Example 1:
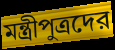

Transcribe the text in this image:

মন্ত্রীপুত্রদের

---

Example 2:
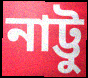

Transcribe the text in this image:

নাট্টু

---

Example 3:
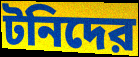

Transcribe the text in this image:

টনিদের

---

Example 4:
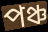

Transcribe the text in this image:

পঞ্চ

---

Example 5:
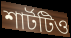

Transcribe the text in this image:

শার্টটিও